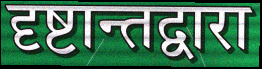
दृष्टान्तद्वारा